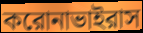
করোনাভাইরাস